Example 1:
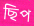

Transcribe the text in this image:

ছিপ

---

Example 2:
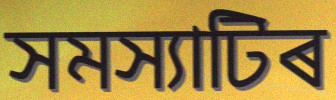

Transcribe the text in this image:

সমস্যাটিৰ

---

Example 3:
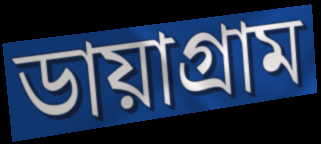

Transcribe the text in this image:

ডায়াগ্ৰাম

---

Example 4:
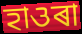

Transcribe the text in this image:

হাওৰা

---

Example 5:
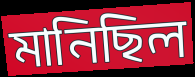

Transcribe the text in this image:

মানিছিল